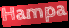
Hampa